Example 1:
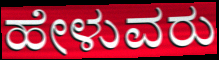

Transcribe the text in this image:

ಹೇಳುವರು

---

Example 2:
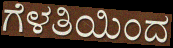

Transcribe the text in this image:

ಗೆಳತಿಯಿಂದ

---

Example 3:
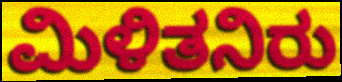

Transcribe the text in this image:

ಮಿಳಿತನಿರು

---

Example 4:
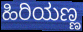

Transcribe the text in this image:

ಹಿರಿಯಣ್ಣ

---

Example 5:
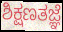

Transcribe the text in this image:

ಶಿಕ್ಷಣತಜ್ಞೆ